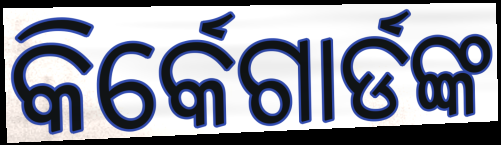
କିର୍କେଗାର୍ଡଙ୍କ